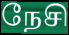
நேசி